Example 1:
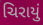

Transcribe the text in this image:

ચિરાયું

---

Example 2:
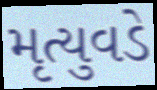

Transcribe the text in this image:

મૃત્યુવડે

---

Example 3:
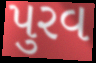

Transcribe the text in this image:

પુરવ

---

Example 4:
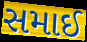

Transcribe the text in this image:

સમાઈ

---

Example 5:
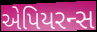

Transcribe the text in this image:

એપિયરન્સ